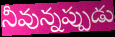
నీవున్నప్పుడు